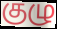
குழு